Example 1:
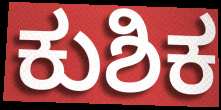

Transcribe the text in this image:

ಕುಶಿಕ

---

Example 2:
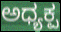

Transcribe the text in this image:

ಅಧ್ಯಕ್ಪ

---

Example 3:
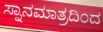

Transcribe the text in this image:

ಸ್ನಾನಮಾತ್ರದಿಂದ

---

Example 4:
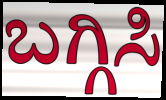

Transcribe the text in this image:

ಬಗ್ಗಿಸಿ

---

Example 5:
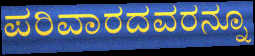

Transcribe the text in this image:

ಪರಿವಾರದವರನ್ನೂ